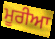
ਮੂਰੀਆ